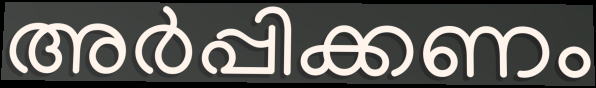
അർപ്പിക്കണം